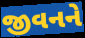
જીવનને